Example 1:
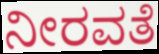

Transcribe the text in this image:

ನೀರವತೆ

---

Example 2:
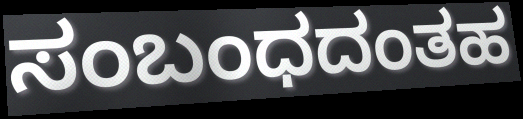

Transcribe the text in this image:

ಸಂಬಂಧದಂತಹ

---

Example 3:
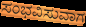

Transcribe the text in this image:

ಸಂಭವಿಸುವಾಗ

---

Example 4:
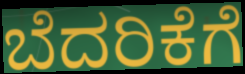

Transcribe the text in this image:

ಬೆದರಿಕೆಗೆ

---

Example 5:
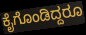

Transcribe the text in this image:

ಕೈಗೊಂಡಿದ್ದರೂ